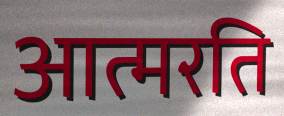
आत्मरति